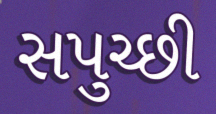
સપુચ્છી